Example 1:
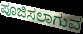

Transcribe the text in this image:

ಪೂಜಿಸಲಾಗುವ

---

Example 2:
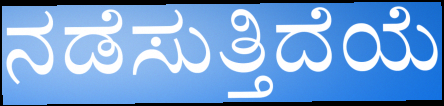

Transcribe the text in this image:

ನಡೆಸುತ್ತಿದೆಯೆ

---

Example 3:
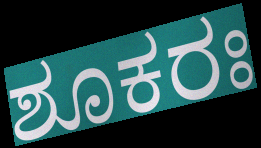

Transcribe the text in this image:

ಶೂಕರಃ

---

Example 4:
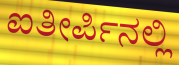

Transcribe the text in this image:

ಐತೀರ್ಪಿನಲ್ಲಿ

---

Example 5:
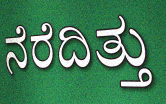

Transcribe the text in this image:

ನೆರೆದಿತ್ತು